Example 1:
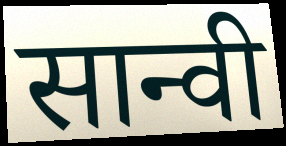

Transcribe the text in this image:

सान्वी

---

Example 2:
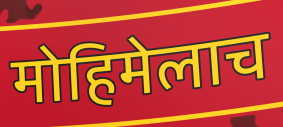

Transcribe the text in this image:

मोहिमेलाच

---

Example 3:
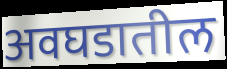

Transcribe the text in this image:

अवघडातील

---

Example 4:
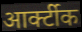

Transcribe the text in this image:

आर्क्टीक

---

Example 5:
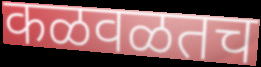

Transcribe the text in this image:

कळवळतच